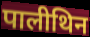
पालीथिन